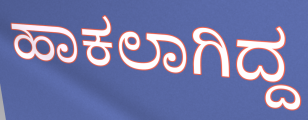
ಹಾಕಲಾಗಿದ್ದ